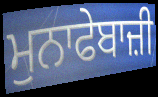
ਮੁਨਾਫੇਬਾਜ਼ੀ